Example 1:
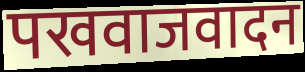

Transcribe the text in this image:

पखवाजवादन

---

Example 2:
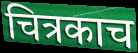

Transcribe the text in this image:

चित्रकाच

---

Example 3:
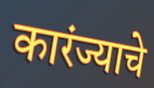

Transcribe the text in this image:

कारंज्याचे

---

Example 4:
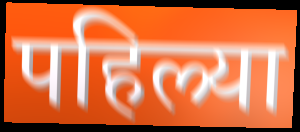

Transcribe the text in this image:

पहिल्या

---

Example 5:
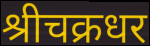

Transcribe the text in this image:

श्रीचक्रधर